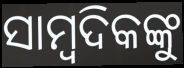
ସାମ୍ବଦିକଙ୍କୁ